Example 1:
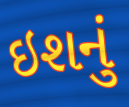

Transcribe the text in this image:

ઇશનું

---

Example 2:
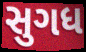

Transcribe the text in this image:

સુગધ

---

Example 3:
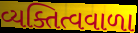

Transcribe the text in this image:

વ્યક્તિત્વવાળા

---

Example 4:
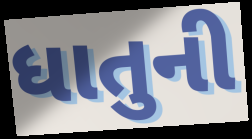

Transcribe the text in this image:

ધાતુની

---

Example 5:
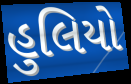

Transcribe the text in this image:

હુલિયો